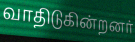
வாதிடுகின்றனர்